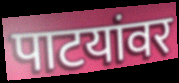
पाटयांवर